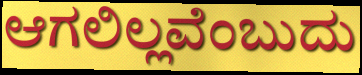
ಆಗಲಿಲ್ಲವೆಂಬುದು